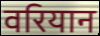
वरियान